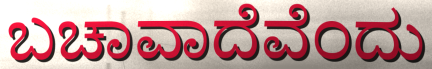
ಬಚಾವಾದೆವೆಂದು